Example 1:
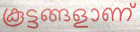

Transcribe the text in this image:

കൂട്ടങ്ങളാണ്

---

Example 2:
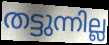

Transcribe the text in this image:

തട്ടുന്നില്ല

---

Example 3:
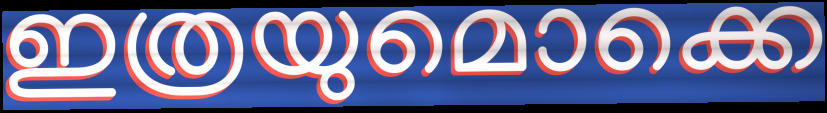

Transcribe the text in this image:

ഇത്രയുമൊക്കെ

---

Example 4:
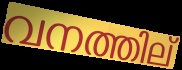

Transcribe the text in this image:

വനത്തില്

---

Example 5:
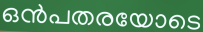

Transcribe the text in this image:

ഒൻപതരയോടെ